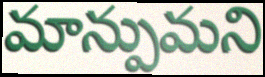
మాన్పుమని